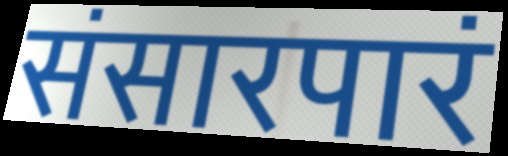
संसारपारं